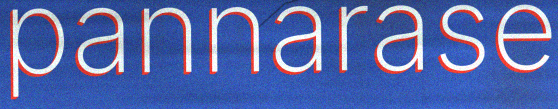
pannarase